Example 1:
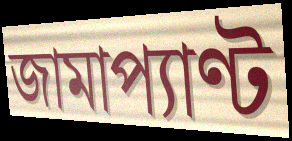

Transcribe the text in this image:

জামাপ্যাণ্ট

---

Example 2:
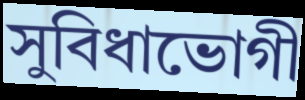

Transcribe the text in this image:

সুবিধাভোগী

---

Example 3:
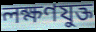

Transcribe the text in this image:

লক্ষণযুক্ত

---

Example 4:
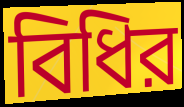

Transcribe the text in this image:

বিধির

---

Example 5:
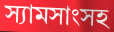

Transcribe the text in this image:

স্যামসাংসহ